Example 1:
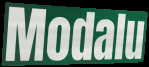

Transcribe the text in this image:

Modalu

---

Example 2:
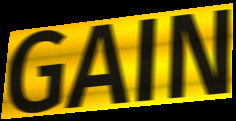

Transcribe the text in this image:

GAIN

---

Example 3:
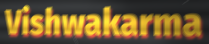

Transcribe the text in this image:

Vishwakarma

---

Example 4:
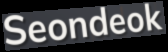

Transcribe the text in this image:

Seondeok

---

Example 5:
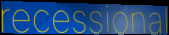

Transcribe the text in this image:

recessional